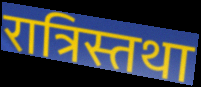
रात्रिस्तथा